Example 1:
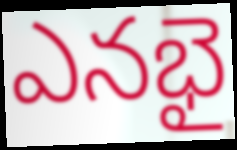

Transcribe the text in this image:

ఎనభై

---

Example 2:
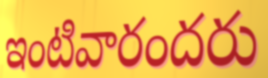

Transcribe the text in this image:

ఇంటివారందరు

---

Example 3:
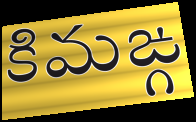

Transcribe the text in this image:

కిమఙ్గ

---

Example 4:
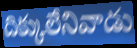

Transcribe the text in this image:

దిక్కులేనివాడు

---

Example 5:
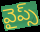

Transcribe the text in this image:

వైప్స్